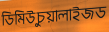
ডিমিউচুয়ালাইজড